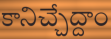
కానిచ్చేద్దాం